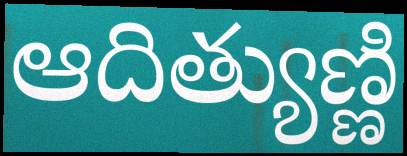
ఆదిత్యుణ్ణి